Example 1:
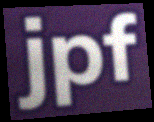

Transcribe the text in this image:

jpf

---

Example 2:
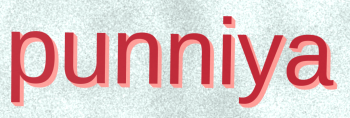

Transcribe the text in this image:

punniya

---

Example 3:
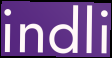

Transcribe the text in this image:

indli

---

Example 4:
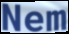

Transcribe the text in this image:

Nem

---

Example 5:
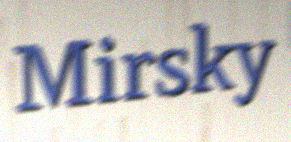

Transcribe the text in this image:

Mirsky